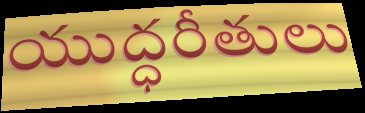
యుద్ధరీతులు